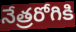
నేత్రరోగికి